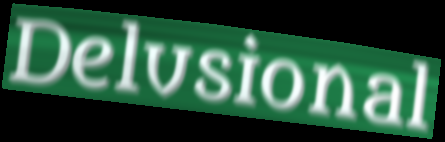
Delusional